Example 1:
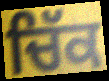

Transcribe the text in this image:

ਚਿੱਕ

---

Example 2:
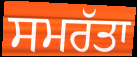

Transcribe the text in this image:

ਸਮਰੱਤਾ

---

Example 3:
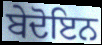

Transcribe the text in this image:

ਬੇਦੋਇਨ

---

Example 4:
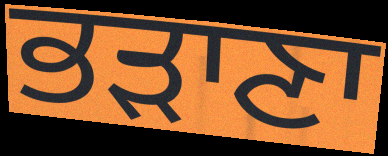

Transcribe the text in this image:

ਭੜਾਣਾ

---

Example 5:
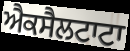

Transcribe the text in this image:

ਐਕਸੈਲਟਾਟਾ